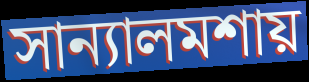
সান্যালমশায়